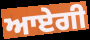
ਆਏਗੀ